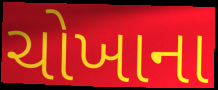
ચોખાના